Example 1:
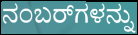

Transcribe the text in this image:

ನಂಬರ್‌ಗಳನ್ನು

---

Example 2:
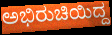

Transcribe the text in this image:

ಅಭಿರುಚಿಯಿದ್ದ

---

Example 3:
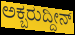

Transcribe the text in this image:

ಅಕ್ಬರುದ್ದೀನ್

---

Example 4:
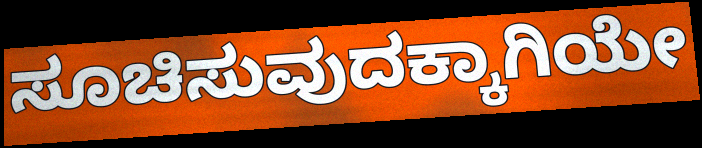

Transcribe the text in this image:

ಸೂಚಿಸುವುದಕ್ಕಾಗಿಯೇ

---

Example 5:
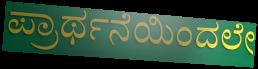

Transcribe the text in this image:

ಪ್ರಾರ್ಥನೆಯಿಂದಲೇ